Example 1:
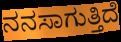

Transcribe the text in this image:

ನನಸಾಗುತ್ತಿದೆ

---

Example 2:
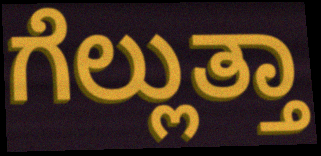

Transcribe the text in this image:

ಗೆಲ್ಲುತ್ತಾ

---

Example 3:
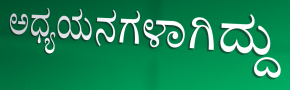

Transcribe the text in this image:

ಅಧ್ಯಯನಗಳಾಗಿದ್ದು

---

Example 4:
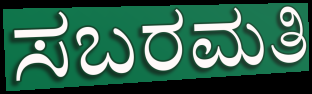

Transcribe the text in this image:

ಸಬರಮತಿ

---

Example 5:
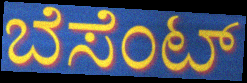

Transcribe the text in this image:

ಬೆಸೆಂಟ್